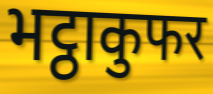
भट्ठाकुफर